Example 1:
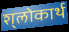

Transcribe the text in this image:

श्लोकार्थ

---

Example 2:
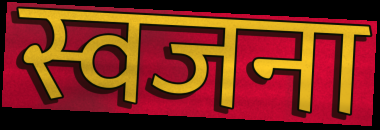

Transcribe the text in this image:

स्वजना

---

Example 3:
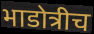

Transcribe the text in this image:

भाडोत्रीच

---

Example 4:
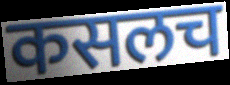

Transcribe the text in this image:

कसलच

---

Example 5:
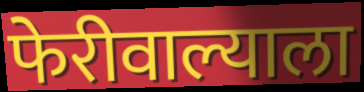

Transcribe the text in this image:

फेरीवाल्याला